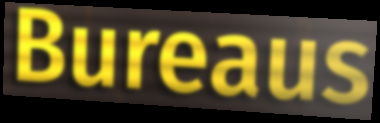
Bureaus